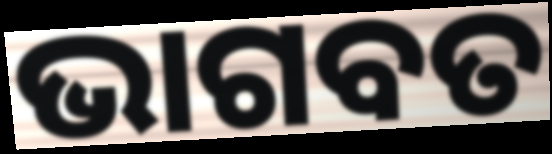
ଭାଗବତ